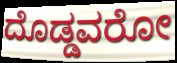
ದೊಡ್ಡವರೋ